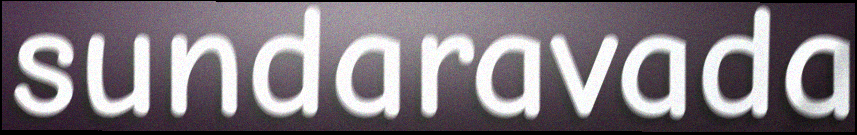
sundaravada